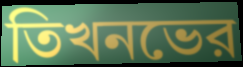
তিখনভের